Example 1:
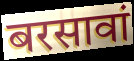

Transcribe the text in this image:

बरसावां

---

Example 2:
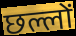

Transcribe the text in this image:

छल्लों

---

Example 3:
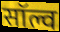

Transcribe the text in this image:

सॉल्व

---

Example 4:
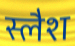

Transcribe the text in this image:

स्लैश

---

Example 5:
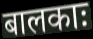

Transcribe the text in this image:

बालकाः